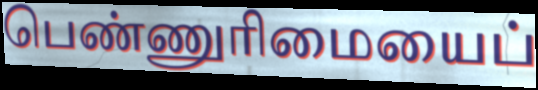
பெண்ணுரிமையைப்